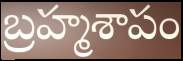
బ్రహ్మశాపం